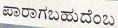
ಪಾರಾಗಬಹುದೆಂಬ